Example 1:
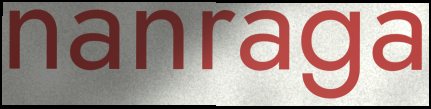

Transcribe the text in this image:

nanraga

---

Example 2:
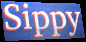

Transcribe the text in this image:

Sippy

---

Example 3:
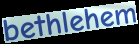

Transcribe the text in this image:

bethlehem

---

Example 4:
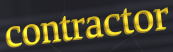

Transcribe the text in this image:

contractor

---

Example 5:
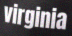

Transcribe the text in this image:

virginia